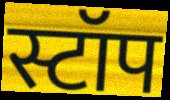
स्टॉप